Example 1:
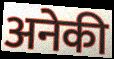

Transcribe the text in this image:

अनेकी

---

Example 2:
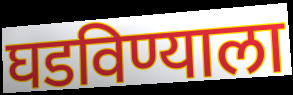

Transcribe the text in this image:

घडविण्याला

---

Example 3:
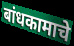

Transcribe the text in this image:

बांधकामाचे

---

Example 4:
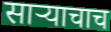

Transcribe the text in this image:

साऱ्याचाच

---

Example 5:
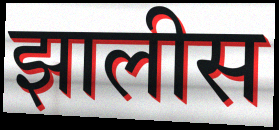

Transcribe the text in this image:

झालीस